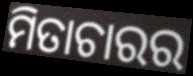
ମିତାଚାରର